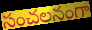
సంచలనంగా